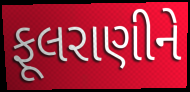
ફૂલરાણીને